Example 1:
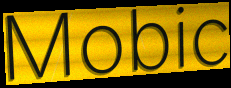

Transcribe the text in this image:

Mobic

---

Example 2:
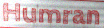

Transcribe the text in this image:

Humran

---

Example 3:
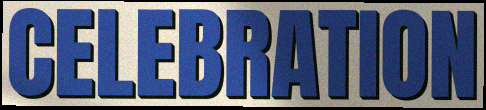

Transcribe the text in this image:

CELEBRATION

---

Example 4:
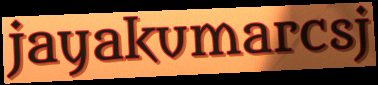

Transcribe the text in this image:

jayakumarcsj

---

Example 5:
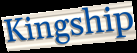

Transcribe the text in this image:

Kingship